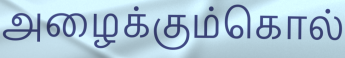
அழைக்கும்கொல்